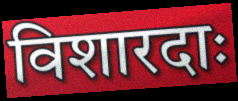
विशारदाः